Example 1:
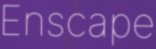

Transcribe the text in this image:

Enscape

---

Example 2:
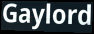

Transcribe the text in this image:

Gaylord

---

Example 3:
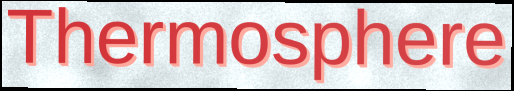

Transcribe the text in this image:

Thermosphere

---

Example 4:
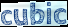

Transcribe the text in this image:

cubic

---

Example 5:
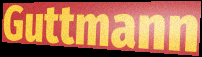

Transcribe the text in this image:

Guttmann